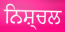
ਨਿਸ਼੍ਚਲ